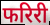
फरिरी